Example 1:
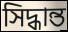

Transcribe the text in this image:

সিদ্ধান্ত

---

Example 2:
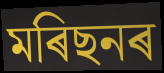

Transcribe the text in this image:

মৰিছনৰ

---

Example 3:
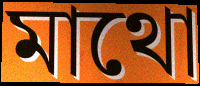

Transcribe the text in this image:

মাথো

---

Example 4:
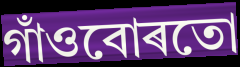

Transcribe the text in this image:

গাঁওবোৰতো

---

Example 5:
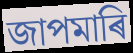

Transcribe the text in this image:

জাপমাৰি